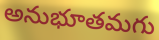
అనుభూతమగు